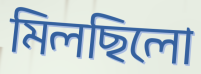
মিলছিলো